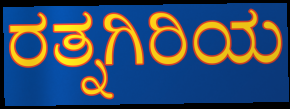
ರತ್ನಗಿರಿಯ